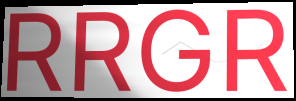
RRGR